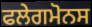
ਫਲੇਗਮੋਨਸ